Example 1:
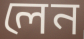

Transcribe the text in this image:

লেন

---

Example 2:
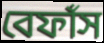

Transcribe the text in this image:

বেফাঁস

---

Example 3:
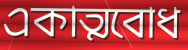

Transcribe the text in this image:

একাত্মবোধ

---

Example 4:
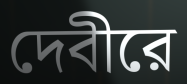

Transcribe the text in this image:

দেবীরে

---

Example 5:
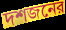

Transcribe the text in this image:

দশজনের